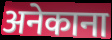
अनेकाना